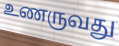
உணருவது